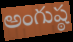
అంగుష్ఠ